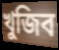
খুজিব